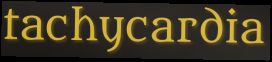
tachycardia